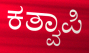
ಕತ್ವಾಪಿ